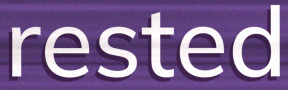
rested